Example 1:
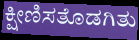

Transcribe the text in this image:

ಕ್ಷೀಣಿಸತೊಡಗಿತು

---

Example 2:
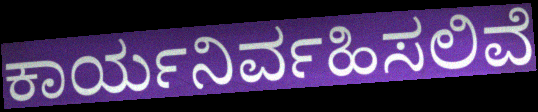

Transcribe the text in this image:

ಕಾರ್ಯನಿರ್ವಹಿಸಲಿವೆ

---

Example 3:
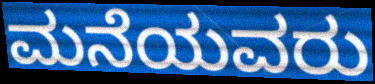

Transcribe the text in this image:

ಮನೆಯವರು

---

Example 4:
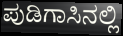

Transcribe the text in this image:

ಪುಡಿಗಾಸಿನಲ್ಲಿ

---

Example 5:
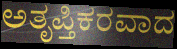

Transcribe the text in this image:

ಅತೃಪ್ತಿಕರವಾದ